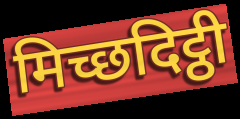
मिच्छदिट्ठी